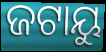
ଜଟାୟୁ